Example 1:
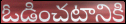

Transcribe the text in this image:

ఓడించటానికి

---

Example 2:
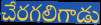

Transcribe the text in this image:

చేరగలిగాడు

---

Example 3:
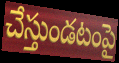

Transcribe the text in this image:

చేస్తుండటంపై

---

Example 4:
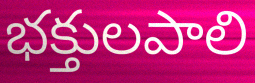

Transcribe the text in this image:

భక్తులపాలి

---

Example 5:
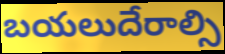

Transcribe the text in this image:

బయలుదేరాల్సి